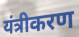
यंत्रीकरण